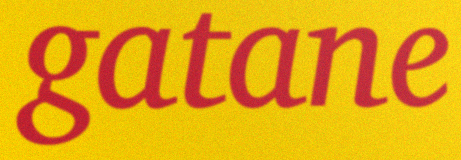
gatane